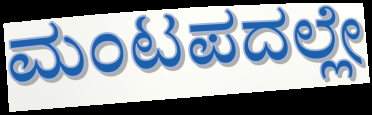
ಮಂಟಪದಲ್ಲೇ